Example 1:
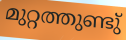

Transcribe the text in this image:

മുറ്റത്തുണ്ടു്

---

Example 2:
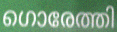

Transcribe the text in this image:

ഗൊരേത്തി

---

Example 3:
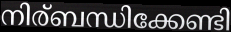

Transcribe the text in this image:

നിര്ബന്ധിക്കേണ്ടി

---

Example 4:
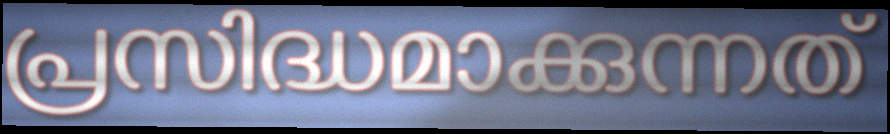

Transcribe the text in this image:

പ്രസിദ്ധമാക്കുന്നത്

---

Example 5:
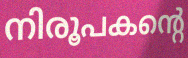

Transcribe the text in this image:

നിരൂപകന്റെ